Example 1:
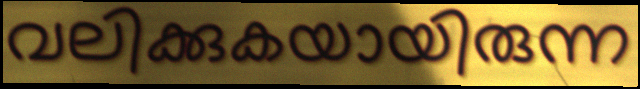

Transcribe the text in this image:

വലിക്കുകയായിരുന്ന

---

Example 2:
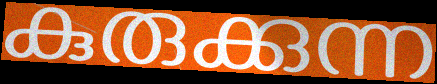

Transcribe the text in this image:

കുരുക്കുന്ന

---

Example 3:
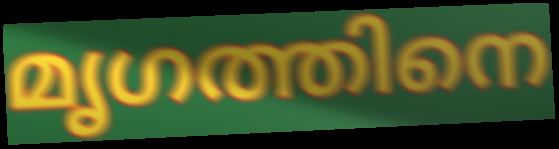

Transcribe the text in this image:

മൃഗത്തിനെ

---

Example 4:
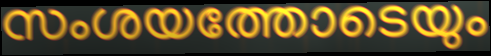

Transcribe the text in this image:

സംശയത്തോടെയും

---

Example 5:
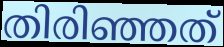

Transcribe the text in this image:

തിരിഞ്ഞത്